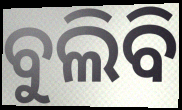
ବୁଲିବି